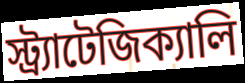
স্ট্র্যাটেজিক্যালি